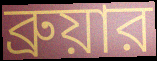
ব্রুয়ার